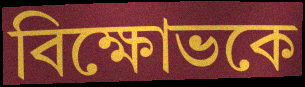
বিক্ষোভকে